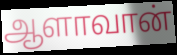
ஆளாவான்